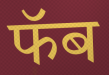
फॅब